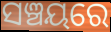
ସଞ୍ଚୟରେ